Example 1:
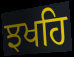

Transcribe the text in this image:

ਝਖਹਿ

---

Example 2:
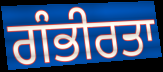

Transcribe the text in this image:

ਗੰਭੀਰਤਾ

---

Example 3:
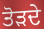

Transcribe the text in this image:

ਤੋੜਦੇ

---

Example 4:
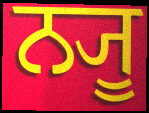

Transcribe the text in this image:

ਨ੍ਯੂ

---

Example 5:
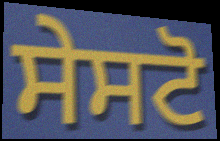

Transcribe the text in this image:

ਸੇਸਟੋ